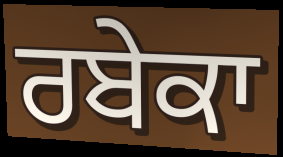
ਰਬੇਕਾ